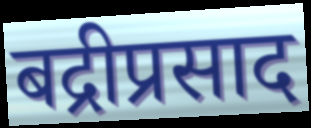
बद्रीप्रसाद